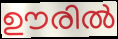
ഊരിൽ